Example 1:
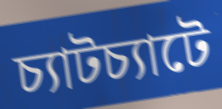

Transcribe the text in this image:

চ্যাটচ্যাটে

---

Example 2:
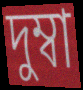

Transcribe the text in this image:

দুম্বা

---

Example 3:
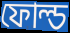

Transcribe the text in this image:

ফোল্ড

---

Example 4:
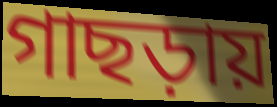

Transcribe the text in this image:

গাছড়ায়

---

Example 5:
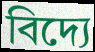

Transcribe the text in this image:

বিদ্যে